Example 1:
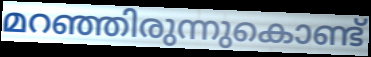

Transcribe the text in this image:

മറഞ്ഞിരുന്നുകൊണ്ട്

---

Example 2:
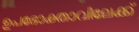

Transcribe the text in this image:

ഉപഭോക്താവിലേക്ക്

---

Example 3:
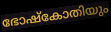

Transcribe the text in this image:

ഭോഷ്കോതിയും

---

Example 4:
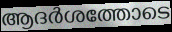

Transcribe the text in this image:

ആദർശത്തോടെ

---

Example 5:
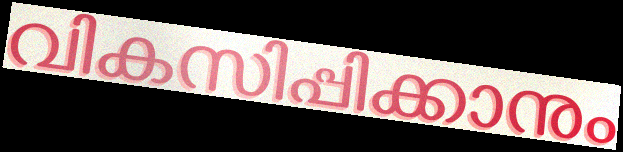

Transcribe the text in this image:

വികസിപ്പിക്കാനും